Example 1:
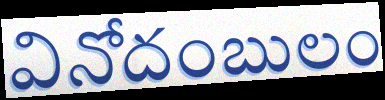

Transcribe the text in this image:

వినోదంబులం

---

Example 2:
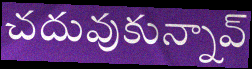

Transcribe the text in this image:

చదువుకున్నావ్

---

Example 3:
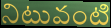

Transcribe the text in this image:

నిటువంటి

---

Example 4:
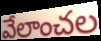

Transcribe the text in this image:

వేలాంచల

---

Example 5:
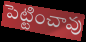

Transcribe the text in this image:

పెట్టించావు